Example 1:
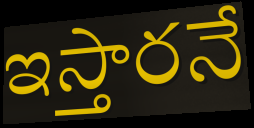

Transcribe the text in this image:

ఇస్తారనే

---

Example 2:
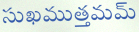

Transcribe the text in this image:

సుఖముత్తమమ్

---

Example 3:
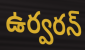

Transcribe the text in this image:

ఉర్వరన్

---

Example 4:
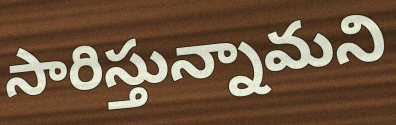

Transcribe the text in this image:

సారిస్తున్నామని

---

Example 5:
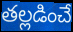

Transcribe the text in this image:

తల్లడించే